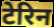
टेरिन